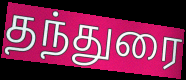
தந்துரை